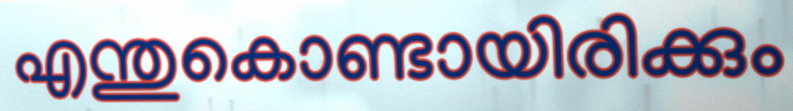
എന്തുകൊണ്ടായിരിക്കും